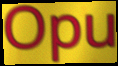
Opu